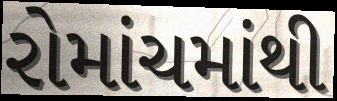
રોમાંચમાંથી